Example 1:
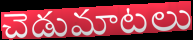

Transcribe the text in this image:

చెడుమాటలు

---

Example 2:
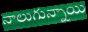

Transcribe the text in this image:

నాలుగున్నాయి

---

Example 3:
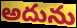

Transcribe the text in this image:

అదును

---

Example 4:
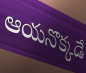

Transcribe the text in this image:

ఆయనొక్కడే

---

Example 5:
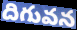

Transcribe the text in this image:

దిగువన